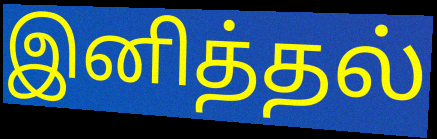
இனித்தல்